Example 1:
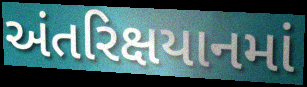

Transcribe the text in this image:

અંતરિક્ષયાનમાં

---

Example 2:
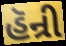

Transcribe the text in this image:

હૅન્રી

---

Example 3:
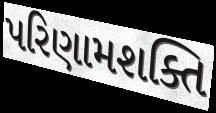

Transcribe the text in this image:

પરિણામશક્તિ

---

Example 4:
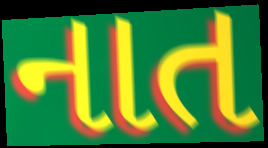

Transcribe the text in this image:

નાત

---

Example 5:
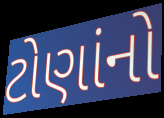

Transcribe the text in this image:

ટોણાંનો